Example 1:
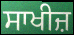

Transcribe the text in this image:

ਸਾਖੀਜ਼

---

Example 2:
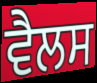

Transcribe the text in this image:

ਵੈਲਸ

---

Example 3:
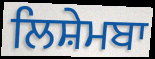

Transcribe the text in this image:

ਲਿਸ਼ੇਮਬਾ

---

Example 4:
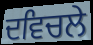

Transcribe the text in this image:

ਦਵਿਚਲੇ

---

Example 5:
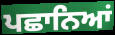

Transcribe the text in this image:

ਪਛਾਨਿਆਂ